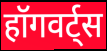
हॉगवर्ट्स